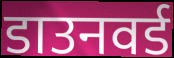
डाउनवर्ड